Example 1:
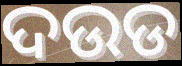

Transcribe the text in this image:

ଦଉଡ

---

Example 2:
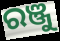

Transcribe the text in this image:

ରଞ୍ଜୁ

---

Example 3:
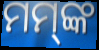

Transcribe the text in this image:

ମମ୍‍ଙ୍କ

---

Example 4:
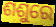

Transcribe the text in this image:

ଶଶୁରେ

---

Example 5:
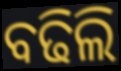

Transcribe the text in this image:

ବଢିଲି